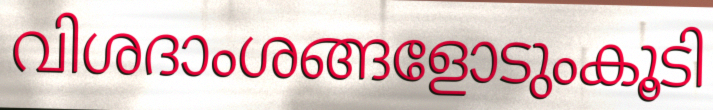
വിശദാംശങ്ങളോടുംകൂടി